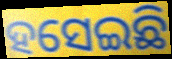
ହସେଇଛି